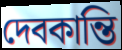
দেবকান্তি